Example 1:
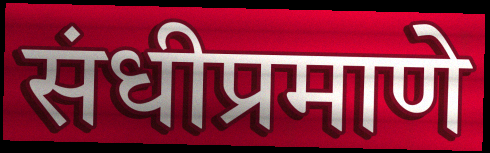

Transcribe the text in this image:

संधीप्रमाणे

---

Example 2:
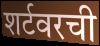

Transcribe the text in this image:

शर्टवरची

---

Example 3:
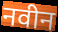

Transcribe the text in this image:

नवीन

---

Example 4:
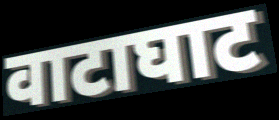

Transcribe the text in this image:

वाटाघाट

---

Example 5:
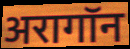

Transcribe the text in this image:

अरागॉन